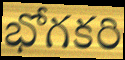
భోగకరి